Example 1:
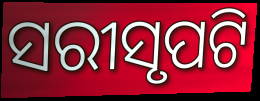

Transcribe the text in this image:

ସରୀସୃପଟି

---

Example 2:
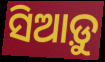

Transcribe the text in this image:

ସିଆଡ଼ୁ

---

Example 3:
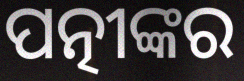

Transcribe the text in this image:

ପତ୍ନୀଙ୍କର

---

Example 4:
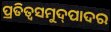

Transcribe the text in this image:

ପ୍ରତିତ୍ଵସମୁଦ୍‌ପାଦର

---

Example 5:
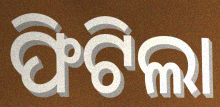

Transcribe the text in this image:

ଫିଟିଲା